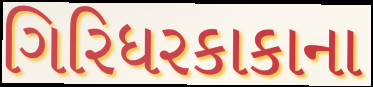
ગિરિધરકાકાના